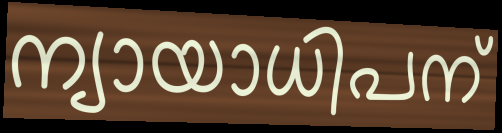
ന്യായാധിപന്